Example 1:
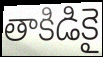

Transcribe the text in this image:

తాకిడికై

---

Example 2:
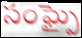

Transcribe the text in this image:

సంఘ్పై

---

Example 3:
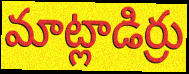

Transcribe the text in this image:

మాట్లాడిర్రు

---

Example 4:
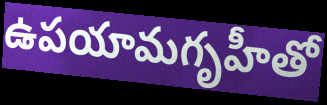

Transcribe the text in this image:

ఉపయామగృహీతో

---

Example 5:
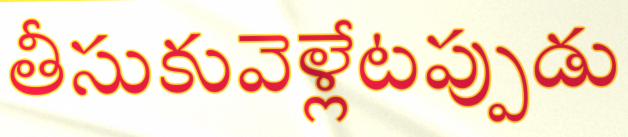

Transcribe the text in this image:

తీసుకువెళ్లేటప్పుడు